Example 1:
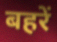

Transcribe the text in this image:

बहरें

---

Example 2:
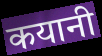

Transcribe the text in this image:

कयानी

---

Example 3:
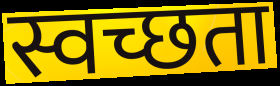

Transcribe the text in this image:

स्वच्छता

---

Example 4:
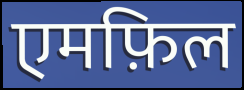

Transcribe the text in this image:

एमफ़िल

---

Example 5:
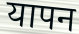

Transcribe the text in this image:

यापन